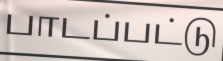
பாடப்பட்டு